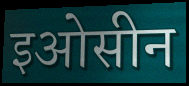
इओसीन